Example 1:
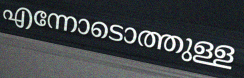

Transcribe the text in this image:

എന്നോടൊത്തുള്ള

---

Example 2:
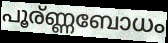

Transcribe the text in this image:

പൂര്ണ്ണബോധം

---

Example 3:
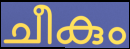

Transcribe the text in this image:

ചീകും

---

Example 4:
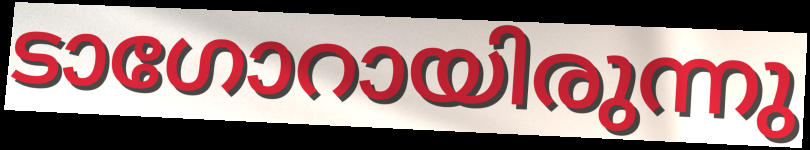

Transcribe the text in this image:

ടാഗോറായിരുന്നു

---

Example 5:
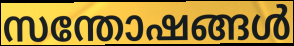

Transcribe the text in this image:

സന്തോഷങ്ങൾ